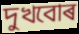
দুখবোৰ